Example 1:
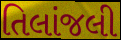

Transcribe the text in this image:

તિલાંજલી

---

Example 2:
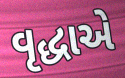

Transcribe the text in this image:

વૃદ્ધાએ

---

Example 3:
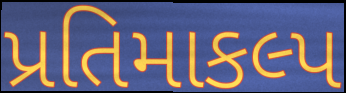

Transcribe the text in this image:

પ્રતિમાકલ્પ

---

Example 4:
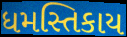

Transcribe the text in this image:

ધમસ્તિકાય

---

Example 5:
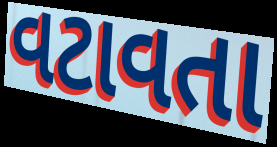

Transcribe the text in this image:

વટાવતા